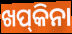
ଖପ୍‌କିନା